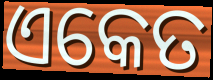
ଏକେତ